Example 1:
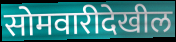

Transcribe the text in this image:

सोमवारीदेखील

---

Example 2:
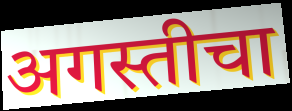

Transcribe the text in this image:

अगस्तीचा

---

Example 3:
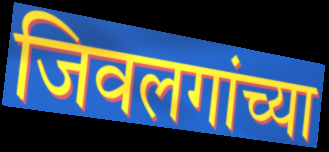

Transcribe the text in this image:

जिवलगांच्या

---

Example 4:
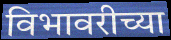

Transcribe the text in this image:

विभावरीच्या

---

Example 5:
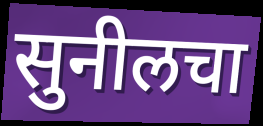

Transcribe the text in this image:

सुनीलचा